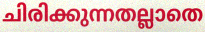
ചിരിക്കുന്നതല്ലാതെ